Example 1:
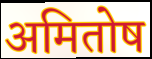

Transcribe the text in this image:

अमितोष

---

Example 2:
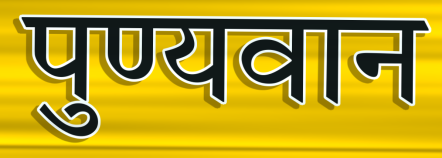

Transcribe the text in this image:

पुण्यवान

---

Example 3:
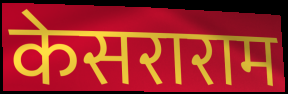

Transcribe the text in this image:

केसराराम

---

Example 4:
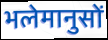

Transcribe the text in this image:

भलेमानुसों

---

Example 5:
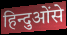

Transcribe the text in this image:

हिन्दुओंसे